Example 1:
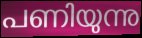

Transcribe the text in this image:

പണിയുന്നു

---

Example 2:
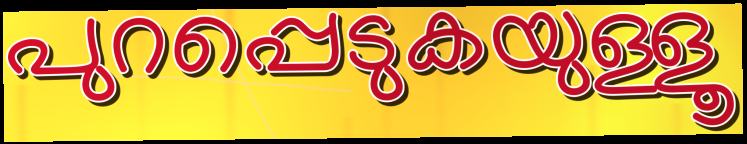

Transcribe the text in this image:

പുറപ്പെടുകയുള്ളൂ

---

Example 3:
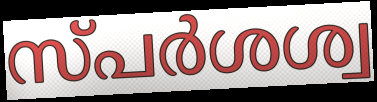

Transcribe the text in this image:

സ്പർശശ്വ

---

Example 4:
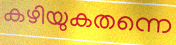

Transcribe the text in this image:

കഴിയുകതന്നെ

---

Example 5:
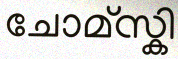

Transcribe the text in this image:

ചോമ്സ്കി